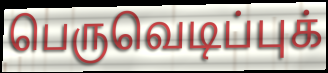
பெருவெடிப்புக்